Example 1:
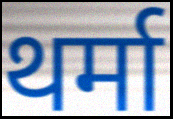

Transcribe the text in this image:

थर्मा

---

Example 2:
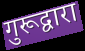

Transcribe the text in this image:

गुरूद्वारा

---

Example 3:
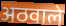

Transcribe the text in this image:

अठवाले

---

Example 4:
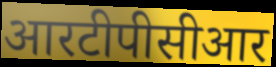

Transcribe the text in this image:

आरटीपीसीआर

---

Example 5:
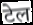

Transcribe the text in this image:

टेल